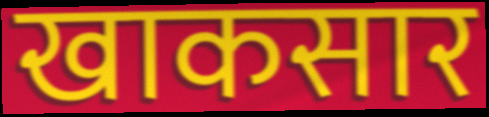
खाकसार